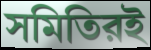
সমিতিরই